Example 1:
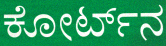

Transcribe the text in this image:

ಕೋರ್ಟ್‌ನ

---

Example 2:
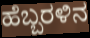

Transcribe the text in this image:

ಹೆಬ್ಬರಳಿನ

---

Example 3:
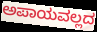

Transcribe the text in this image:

ಅಪಾಯವಲ್ಲದ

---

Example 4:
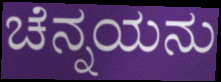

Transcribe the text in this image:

ಚೆನ್ನಯನು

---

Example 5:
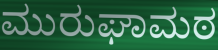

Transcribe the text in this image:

ಮುರುಘಾಮಠ